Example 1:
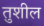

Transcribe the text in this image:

तुशील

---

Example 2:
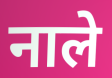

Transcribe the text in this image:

नाले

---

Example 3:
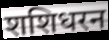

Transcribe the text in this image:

शशिधरन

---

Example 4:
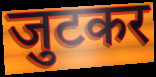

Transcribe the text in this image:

जुटकर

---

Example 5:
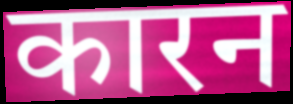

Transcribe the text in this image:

कारन